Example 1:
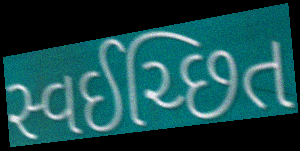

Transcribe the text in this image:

સ્વઈચ્છિત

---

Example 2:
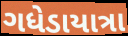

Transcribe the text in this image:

ગધેડાયાત્રા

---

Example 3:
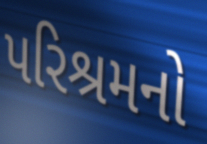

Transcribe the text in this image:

પરિશ્રમનો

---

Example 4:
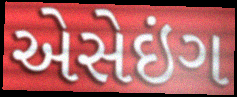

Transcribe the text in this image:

એસેઇંગ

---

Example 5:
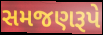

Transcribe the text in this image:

સમજણરૂપે